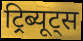
ट्रिब्यूट्स